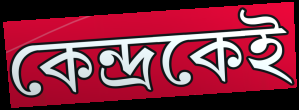
কেন্দ্রকেই